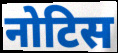
नोटिस